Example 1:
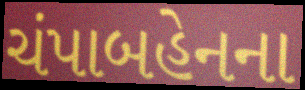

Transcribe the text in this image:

ચંપાબહેનના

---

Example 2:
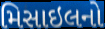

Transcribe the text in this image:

મિસાઇલનો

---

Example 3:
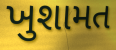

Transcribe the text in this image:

ખુશામત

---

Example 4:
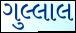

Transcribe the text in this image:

ગુલ્લાલ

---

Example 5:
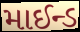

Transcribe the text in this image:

માઈન્ડ